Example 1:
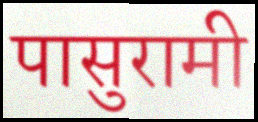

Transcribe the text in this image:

पासुरामी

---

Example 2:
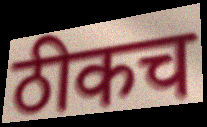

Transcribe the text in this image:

ठीकच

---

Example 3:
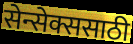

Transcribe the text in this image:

सेन्सेक्ससाठी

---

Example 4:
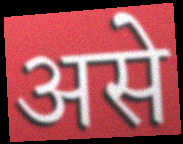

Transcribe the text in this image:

असे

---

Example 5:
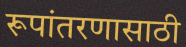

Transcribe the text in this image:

रूपांतरणासाठी